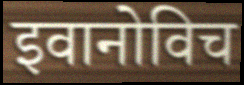
इवानोविच